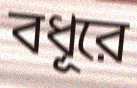
বধূরে